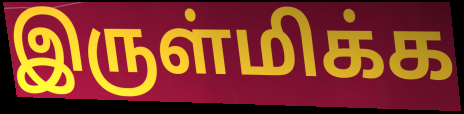
இருள்மிக்க